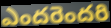
ఎందరెందరి